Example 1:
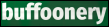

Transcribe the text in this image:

buffoonery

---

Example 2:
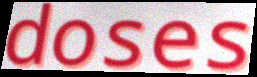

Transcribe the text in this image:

doses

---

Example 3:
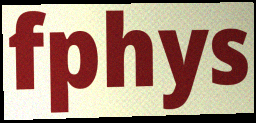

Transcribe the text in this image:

fphys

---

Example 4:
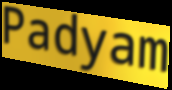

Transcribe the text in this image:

Padyam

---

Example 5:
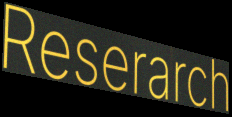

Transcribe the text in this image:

Reserarch